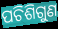
ପଚିଶିଗୁଣ